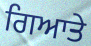
ਗਿਆਤੇ